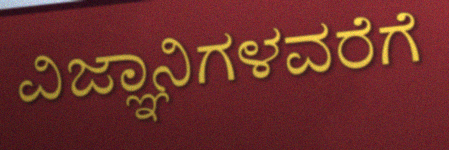
ವಿಜ್ಞಾನಿಗಳವರೆಗೆ